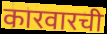
कारवारची